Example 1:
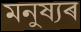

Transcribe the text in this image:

মনুষ্যৰ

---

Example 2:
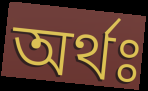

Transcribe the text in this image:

অৰ্থঃ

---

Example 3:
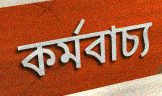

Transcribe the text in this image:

কৰ্মবাচ্য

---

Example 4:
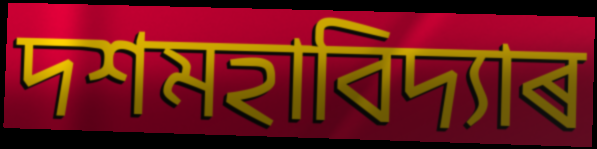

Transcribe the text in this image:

দশমহাবিদ্যাৰ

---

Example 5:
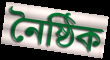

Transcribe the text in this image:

নৈষ্ঠিক